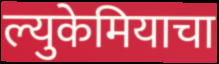
ल्युकेमियाचा